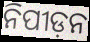
ନିପୀଡ଼ନ